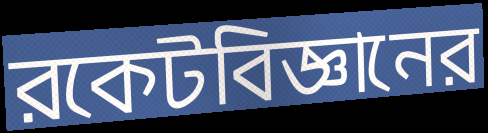
রকেটবিজ্ঞানের